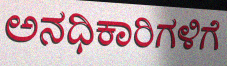
ಅನಧಿಕಾರಿಗಳಿಗೆ